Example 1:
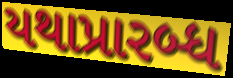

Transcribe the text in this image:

યથાપ્રારબ્ધ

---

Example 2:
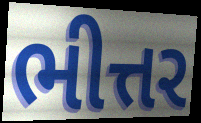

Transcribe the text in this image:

ભીત્તર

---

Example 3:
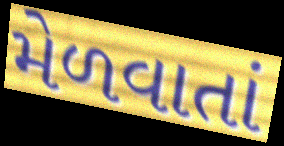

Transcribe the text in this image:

મેળવાતાં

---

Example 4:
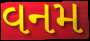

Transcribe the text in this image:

વનમ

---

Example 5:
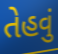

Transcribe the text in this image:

તેહવું